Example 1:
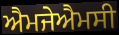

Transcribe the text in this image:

ਐਮਜੇਐਮਸੀ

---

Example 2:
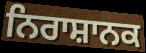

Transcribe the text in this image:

ਨਿਰਾਸ਼ਾਨਕ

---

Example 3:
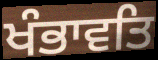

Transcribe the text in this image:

ਖੰਭਾਵਤਿ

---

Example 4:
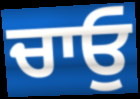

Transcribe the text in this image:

ਚਾਓੁ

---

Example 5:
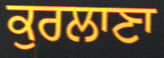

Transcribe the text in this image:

ਕੁਰਲਾਣਾ